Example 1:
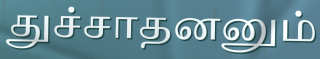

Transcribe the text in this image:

துச்சாதனனும்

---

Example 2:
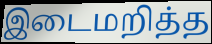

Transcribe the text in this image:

இடைமறித்த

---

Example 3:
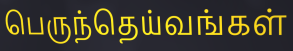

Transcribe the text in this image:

பெருந்தெய்வங்கள்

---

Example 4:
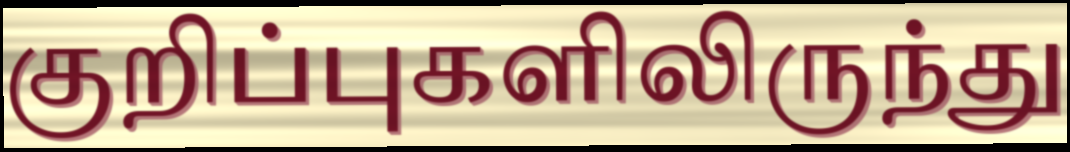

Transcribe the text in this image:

குறிப்புகளிலிருந்து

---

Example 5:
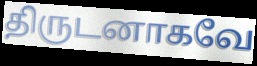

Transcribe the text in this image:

திருடனாகவே